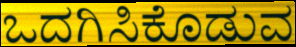
ಒದಗಿಸಿಕೊಡುವ